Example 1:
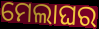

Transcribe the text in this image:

ମେଲାଘର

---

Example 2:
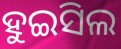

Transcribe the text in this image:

ହୁଇସିଲ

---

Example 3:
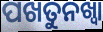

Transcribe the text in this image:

ପଖତୁନଖ୍ୱା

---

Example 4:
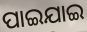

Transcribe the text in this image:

ପାଇଯାଇ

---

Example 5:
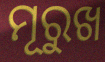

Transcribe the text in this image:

ମୂରୁଖ